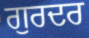
ਗੁਰਦਰ